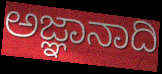
ಅಜ್ಞಾನಾದಿ